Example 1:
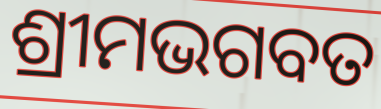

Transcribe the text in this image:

ଶ୍ରୀମଭଗବତ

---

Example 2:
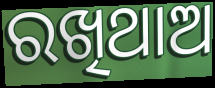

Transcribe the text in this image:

ରଖିଥାଅ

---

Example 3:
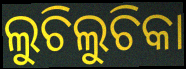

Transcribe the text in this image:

ଲୁଚିଲୁଚିକା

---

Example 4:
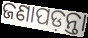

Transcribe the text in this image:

ଜଣାପଡ଼ନ୍ତା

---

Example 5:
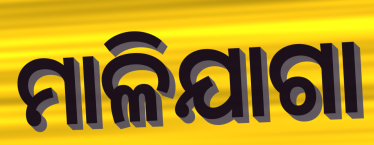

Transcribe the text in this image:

ମାଳିଯାଗା